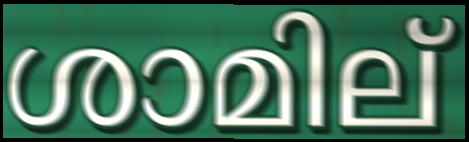
ശാമില്